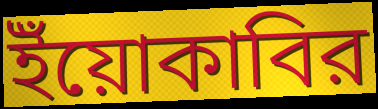
ইঁয়োকাবির